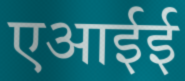
एआईई